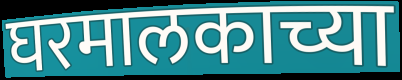
घरमालकाच्या